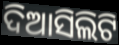
ଦିଆସିଲିଟି